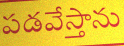
పడవేస్తాను